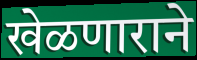
खेळणाराने